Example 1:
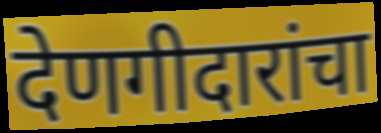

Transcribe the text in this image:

देणगीदारांचा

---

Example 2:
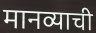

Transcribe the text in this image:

मानव्याची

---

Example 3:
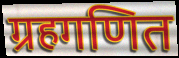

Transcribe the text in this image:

ग्रहगणित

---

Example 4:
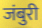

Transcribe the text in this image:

जंबुरी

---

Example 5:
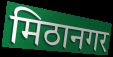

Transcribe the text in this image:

मिठानगर